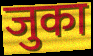
जुका